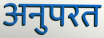
अनुपरत